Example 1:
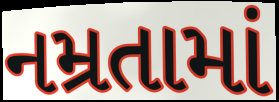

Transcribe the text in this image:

નમ્રતામાં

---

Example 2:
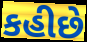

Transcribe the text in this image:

કહીછે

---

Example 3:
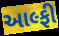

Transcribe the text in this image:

આલ્ફી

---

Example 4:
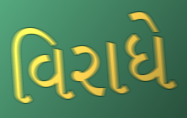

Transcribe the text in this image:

વિરાધે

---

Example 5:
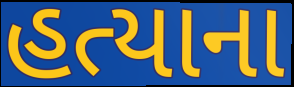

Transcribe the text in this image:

હત્યાના